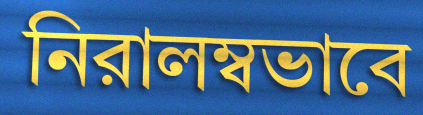
নিরালম্বভাবে